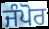
ਜੰਪੋਰ